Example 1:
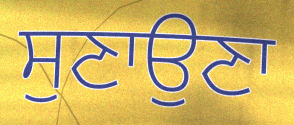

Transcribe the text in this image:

ਸੁਣਾਉਣਾ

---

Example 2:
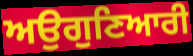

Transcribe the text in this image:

ਅਉਗੁਣਿਆਰੀ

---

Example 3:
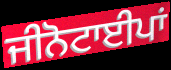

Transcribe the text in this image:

ਜੀਨੋਟਾਈਪਾਂ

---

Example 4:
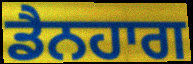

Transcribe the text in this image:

ਡੈਨਹਾਗ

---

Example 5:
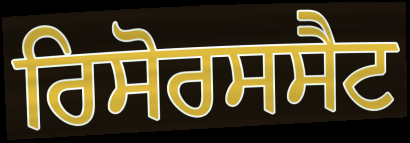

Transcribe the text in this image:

ਰਿਸੋਰਸਸੈਟ